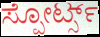
ಸ್ಪೋರ್ಟ್ಸ್